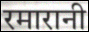
रमारानी